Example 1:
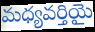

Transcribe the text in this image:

మధ్యవర్తియై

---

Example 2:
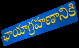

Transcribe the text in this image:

ఛాయాగ్రహణానికి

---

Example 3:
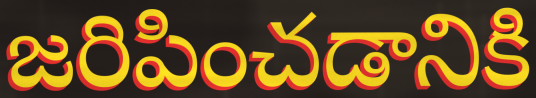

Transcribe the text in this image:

జరిపించడానికి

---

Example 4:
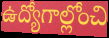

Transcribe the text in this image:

ఉద్యోగాల్లోంచి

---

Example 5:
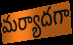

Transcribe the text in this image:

మర్యాదగా